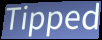
Tipped